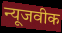
न्यूजवीक